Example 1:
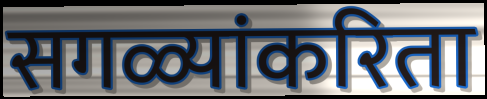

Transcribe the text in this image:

सगळ्यांकरिता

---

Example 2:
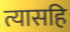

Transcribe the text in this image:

त्यासहि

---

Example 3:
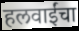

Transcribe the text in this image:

हलवाईंचा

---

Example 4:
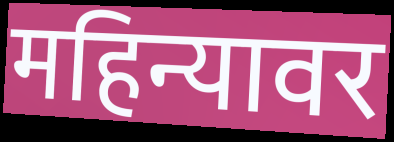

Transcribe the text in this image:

महिन्यावर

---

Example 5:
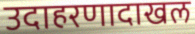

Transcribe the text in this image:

उदाहरणादाखल